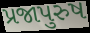
પ્રજાપુરુષ